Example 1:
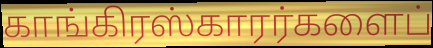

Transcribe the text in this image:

காங்கிரஸ்காரர்களைப்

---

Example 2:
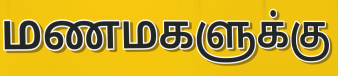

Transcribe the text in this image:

மணமகளுக்கு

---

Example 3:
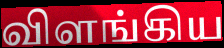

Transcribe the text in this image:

விளங்கிய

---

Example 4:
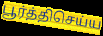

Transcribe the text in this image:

பூர்த்திசெய்ய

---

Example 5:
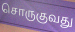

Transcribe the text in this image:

சொருகுவது